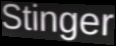
Stinger